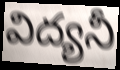
విద్యనీ